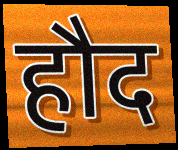
हौद